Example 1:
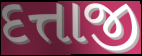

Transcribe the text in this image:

દત્તાજી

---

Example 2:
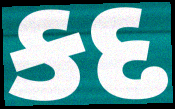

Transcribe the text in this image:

કદ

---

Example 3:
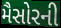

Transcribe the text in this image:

મૈસોરની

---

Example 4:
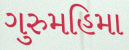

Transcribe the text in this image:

ગુરુમહિમા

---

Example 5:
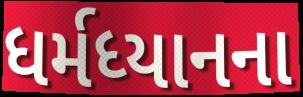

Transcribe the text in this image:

ધર્મધ્યાનના